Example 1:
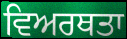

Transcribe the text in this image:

ਵਿਅਰਥਤਾ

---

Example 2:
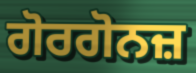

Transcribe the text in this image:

ਗੋਰਗੋਨਜ਼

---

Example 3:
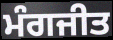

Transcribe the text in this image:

ਮੰਗਜੀਤ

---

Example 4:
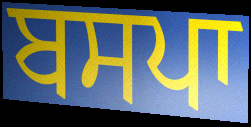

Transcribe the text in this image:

ਬਸਪਾ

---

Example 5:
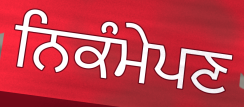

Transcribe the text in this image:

ਨਿਕੰਮੇਪਣ